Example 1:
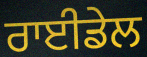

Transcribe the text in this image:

ਰਾਈਡੇਲ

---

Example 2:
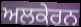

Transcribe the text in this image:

ਅਲਕੇਰਨ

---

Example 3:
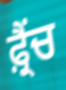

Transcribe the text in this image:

ਫ਼੍ਰੈਂਚ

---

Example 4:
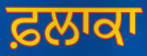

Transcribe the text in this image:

ਫ਼ਲਾਕਾ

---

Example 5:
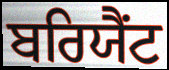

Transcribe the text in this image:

ਬਰਿਯੈਂਟ